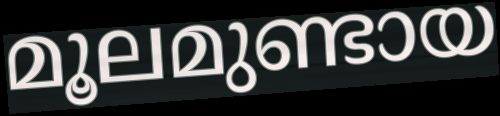
മൂലമുണ്ടായ